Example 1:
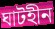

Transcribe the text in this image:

ঘাটহীন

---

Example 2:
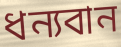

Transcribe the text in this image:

ধন্যবান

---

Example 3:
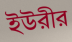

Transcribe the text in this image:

ইউরীর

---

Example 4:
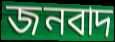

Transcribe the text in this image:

জনবাদ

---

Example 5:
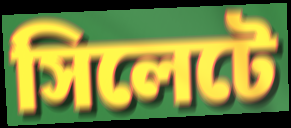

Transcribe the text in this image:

সিলেটে